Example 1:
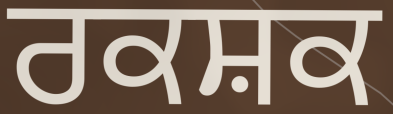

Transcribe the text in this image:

ਰਕਸ਼ਕ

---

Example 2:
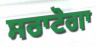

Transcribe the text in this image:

ਸਰਾਟੋਗਾ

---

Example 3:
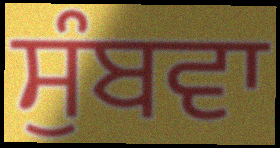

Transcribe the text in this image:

ਸੁੰਬਵਾ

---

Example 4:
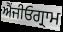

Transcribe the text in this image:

ਐਂਜੀਓਗ੍ਰਾਮ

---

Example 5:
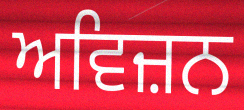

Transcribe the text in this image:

ਅਵਿਜ਼ਨ